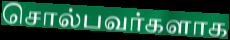
சொல்பவர்களாக